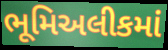
ભૂમિઅલીકમાં